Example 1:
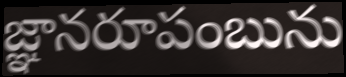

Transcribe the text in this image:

జ్ఞానరూపంబును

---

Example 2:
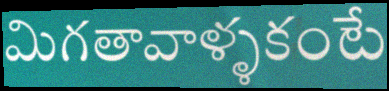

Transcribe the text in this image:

మిగతావాళ్ళకంటే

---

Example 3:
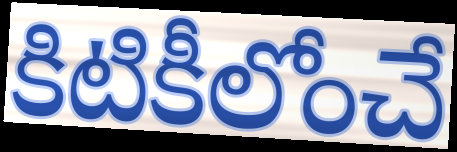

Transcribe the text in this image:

కిటికీలోంచే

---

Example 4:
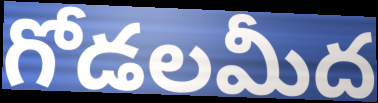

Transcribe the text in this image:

గోడలమీద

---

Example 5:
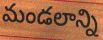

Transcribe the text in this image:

మండలాన్ని